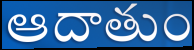
ఆదాతుం